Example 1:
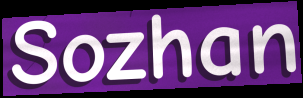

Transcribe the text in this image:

Sozhan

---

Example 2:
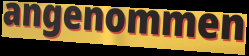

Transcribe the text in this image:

angenommen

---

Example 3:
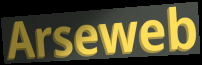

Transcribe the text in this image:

Arseweb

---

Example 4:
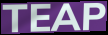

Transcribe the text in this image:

TEAP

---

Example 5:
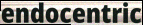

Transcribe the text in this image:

endocentric